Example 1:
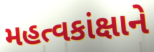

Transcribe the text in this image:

મહત્વકાંક્ષાને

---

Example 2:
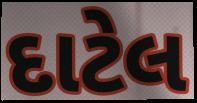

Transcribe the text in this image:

દાટેલ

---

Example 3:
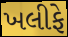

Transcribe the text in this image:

ખલીફે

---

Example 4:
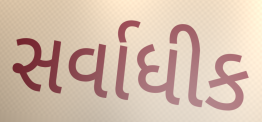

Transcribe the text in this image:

સર્વાધીક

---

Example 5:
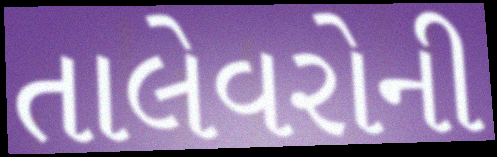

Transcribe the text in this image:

તાલેવરોની